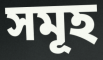
সমূহ